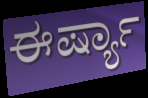
ಈರ್ಷ್ಯಾ